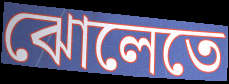
ঝোলেতে